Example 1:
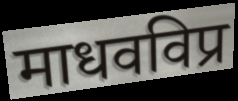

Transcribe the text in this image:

माधवविप्र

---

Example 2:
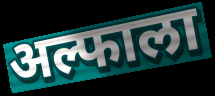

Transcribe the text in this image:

अल्फाला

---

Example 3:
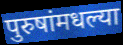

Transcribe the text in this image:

पुरुषांमधल्या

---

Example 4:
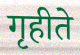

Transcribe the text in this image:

गृहीते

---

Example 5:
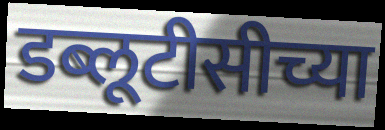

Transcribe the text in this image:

डब्लूटीसीच्या